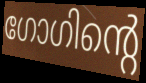
ഗോഗിന്റെ